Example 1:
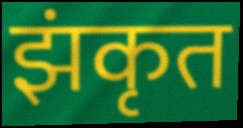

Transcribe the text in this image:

झंकृत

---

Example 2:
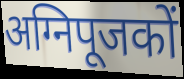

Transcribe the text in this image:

अग्निपूजकों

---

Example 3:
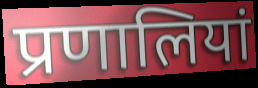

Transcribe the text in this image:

प्रणालियां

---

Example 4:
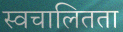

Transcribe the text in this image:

स्वचालितता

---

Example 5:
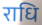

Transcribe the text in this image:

राधि